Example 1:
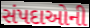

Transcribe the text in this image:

સંપદાઓની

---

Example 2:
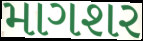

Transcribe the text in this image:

માગશર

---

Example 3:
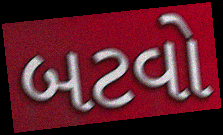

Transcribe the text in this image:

બટવો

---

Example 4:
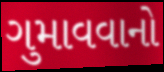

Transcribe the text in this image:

ગુમાવવાનો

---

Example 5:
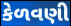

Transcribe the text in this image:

કેળવણી